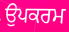
ਉਪਕਰਮ